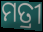
ମତ୍ରୀ